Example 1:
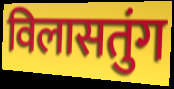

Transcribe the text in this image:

विलासतुंग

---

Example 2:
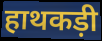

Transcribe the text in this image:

हाथकड़ी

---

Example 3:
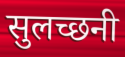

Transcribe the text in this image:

सुलच्छनी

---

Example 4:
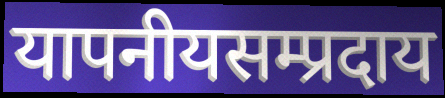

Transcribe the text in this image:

यापनीयसम्प्रदाय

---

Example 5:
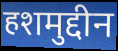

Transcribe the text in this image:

हशमुद्दीन